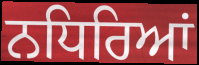
ਨਧਿਰਿਆਂ